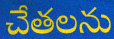
చేతలను